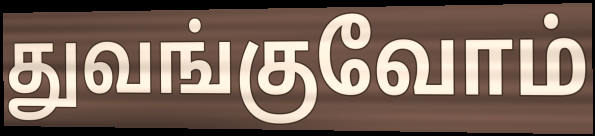
துவங்குவோம்